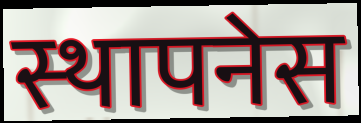
स्थापनेस